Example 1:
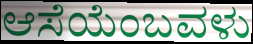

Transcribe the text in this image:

ಆಸೆಯೆಂಬವಳು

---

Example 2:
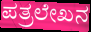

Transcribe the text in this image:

ಪತ್ರಲೇಖನ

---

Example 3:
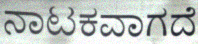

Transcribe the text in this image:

ನಾಟಕವಾಗದೆ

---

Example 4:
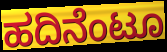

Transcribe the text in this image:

ಹದಿನೆಂಟೂ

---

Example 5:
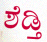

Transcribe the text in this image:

ಶೆಡ್ತಿ